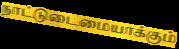
நாட்டுடைமையாக்கும்